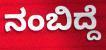
ನಂಬಿದ್ದೆ